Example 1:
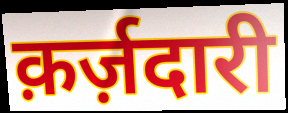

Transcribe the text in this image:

क़र्ज़दारी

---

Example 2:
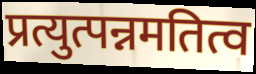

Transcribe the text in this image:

प्रत्युत्पन्नमतित्व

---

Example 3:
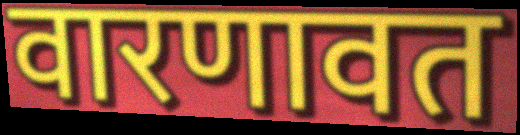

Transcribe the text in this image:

वारणावत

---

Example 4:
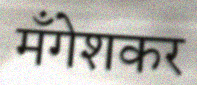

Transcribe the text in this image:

मँगेशकर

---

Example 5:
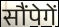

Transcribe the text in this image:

सौंपेगें